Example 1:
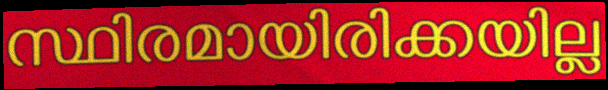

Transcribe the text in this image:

സ്ഥിരമായിരിക്കയില്ല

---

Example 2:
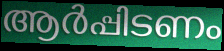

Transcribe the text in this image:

ആർപ്പിടണം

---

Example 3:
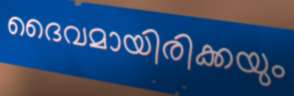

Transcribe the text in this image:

ദൈവമായിരിക്കയും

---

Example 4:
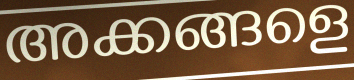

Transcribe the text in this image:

അക്കങ്ങളെ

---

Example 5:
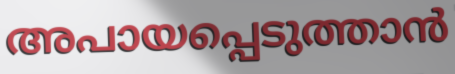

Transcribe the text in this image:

അപായപ്പെടുത്താൻ